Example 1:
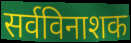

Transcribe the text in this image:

सर्वविनाशक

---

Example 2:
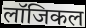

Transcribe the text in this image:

लॉजिकल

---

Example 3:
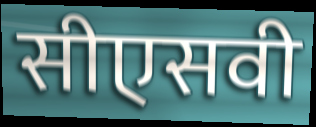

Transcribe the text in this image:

सीएसवी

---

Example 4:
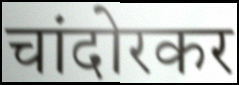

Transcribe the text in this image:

चांदोरकर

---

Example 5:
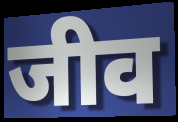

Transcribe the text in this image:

जीव